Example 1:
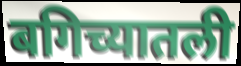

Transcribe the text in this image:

बगिच्यातली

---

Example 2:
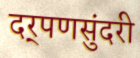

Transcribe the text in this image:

दर्पणसुंदरी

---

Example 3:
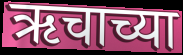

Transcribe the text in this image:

ऋचाच्या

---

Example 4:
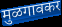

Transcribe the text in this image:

मुळगावकर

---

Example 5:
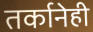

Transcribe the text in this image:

तर्कानेही